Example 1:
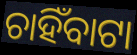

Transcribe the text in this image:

ଚାହିଁବାଟା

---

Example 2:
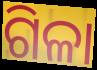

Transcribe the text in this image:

ଗିଳା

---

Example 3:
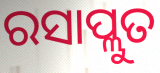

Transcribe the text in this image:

ରସାପ୍ଲୁତ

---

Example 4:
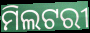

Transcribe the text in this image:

ମିଲଟରୀ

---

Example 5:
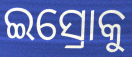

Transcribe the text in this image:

ଇସ୍ରୋକୁ